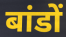
बांडों